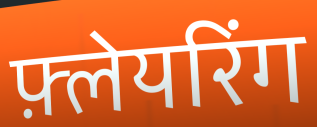
फ़्लेयरिंग